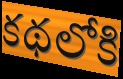
కథలోకి